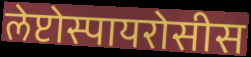
लेप्टोस्पायरोसीस